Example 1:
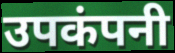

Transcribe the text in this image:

उपकंपनी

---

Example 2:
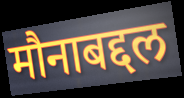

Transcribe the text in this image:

मौनाबद्दल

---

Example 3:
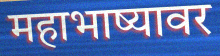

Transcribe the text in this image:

महाभाष्यावर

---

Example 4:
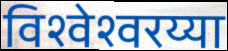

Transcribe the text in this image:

विश्वेश्वरय्या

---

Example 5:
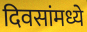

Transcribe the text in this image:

दिवसांमध्ये